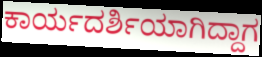
ಕಾರ್ಯದರ್ಶಿಯಾಗಿದ್ದಾಗ